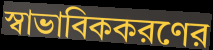
স্বাভাবিককরণের